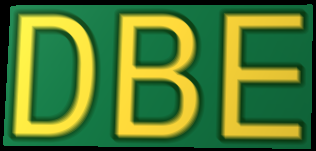
DBE